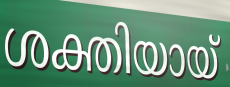
ശക്തിയായ്